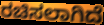
ರಚಿಸಲಾಗಿದೆ